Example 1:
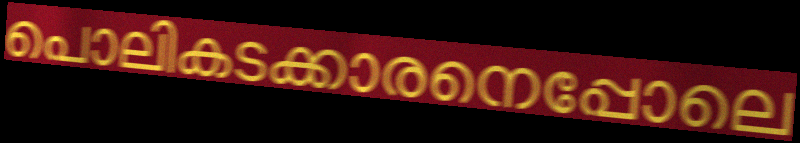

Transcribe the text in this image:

പൊലികടക്കാരനെപ്പോലെ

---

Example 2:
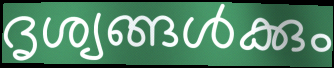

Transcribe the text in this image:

ദൃശ്യങ്ങൾക്കും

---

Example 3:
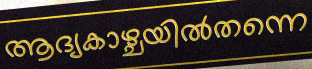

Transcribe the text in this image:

ആദ്യകാഴ്ചയിൽതന്നെ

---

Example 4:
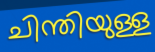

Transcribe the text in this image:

ചിന്തിയുള്ള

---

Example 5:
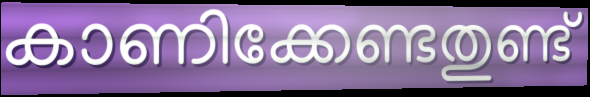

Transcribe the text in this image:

കാണിക്കേണ്ടതുണ്ട്